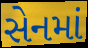
સેનમાં